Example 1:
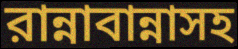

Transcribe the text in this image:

রান্নাবান্নাসহ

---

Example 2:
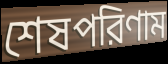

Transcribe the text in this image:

শেষপরিণাম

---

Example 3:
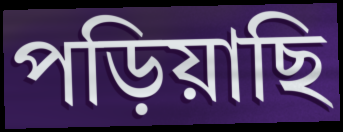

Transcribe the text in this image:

পড়িয়াছি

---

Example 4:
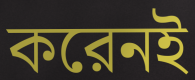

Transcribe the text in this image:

করেনই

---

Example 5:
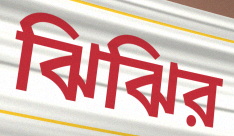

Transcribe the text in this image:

ঝিঝির